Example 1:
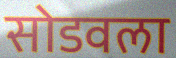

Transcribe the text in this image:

सोडवला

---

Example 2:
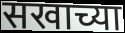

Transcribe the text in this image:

सखाच्या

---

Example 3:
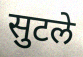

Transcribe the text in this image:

सुटले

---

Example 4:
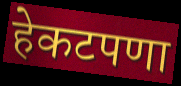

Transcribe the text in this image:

हेकटपणा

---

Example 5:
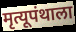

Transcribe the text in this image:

मृत्यूपंथाला